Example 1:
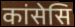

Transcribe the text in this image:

कांसेसि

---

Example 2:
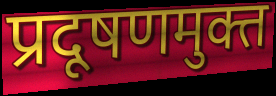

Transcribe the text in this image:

प्रदूषणमुक्त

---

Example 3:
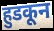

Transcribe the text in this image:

हुडकून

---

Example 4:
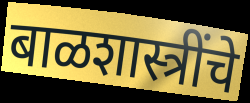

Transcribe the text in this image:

बाळशास्त्रींचे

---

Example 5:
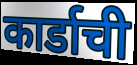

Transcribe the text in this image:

कार्डाची